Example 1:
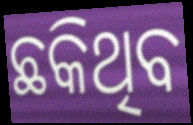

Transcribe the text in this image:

ଛକିଥିବ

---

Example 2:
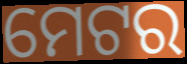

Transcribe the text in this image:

ମେଟର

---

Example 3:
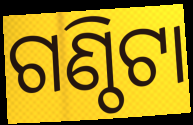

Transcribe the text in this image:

ଗଣ୍ଠିଟା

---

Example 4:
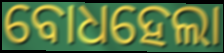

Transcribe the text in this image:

ବୋଧହେଲା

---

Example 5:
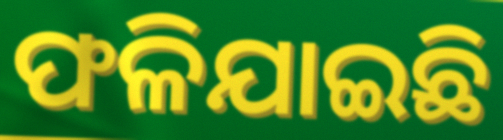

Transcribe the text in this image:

ଫଳିଯାଇଛି